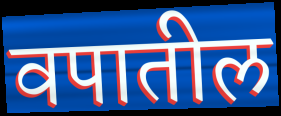
वपातील